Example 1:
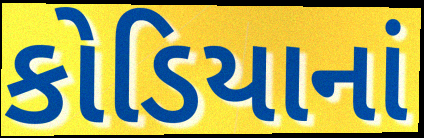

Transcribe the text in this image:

કોડિયાનાં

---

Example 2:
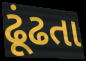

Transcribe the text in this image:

ઢૂંઢતા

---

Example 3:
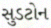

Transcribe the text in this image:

સુડટોન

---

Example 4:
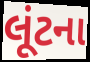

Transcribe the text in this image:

લૂંટના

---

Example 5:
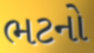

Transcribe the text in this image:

ભટનો